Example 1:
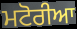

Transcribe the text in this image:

ਮਟੋਰੀਆ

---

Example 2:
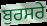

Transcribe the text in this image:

ਬੁਰਸਰੇ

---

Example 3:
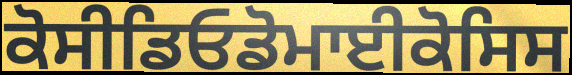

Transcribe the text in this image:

ਕੋਸੀਡਿਓਡੋਮਾਈਕੋਸਿਸ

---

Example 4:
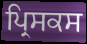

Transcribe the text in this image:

ਪ੍ਰਿਸਕਸ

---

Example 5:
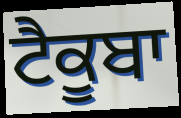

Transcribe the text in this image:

ਟੈਕੂਬਾ